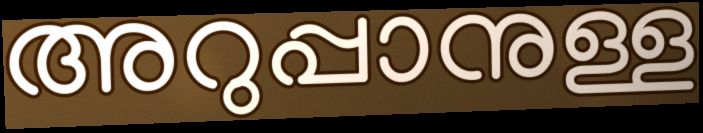
അറുപ്പാനുള്ള